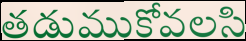
తడుముకోవలసి